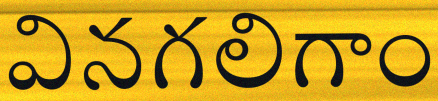
వినగలిగాం